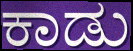
ಕಾಡು